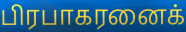
பிரபாகரனைக்